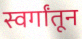
स्वर्गांतून